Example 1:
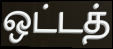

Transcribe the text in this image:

ஒட்டத்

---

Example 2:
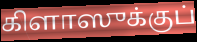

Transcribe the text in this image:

கிளாஸுக்குப்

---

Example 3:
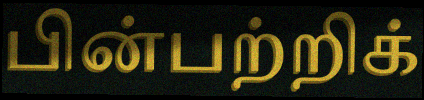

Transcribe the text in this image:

பின்பற்றிக்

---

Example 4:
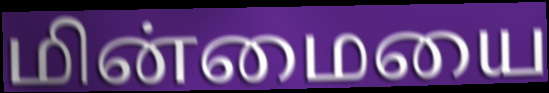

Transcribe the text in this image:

மின்மையை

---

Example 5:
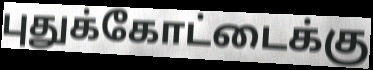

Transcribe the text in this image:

புதுக்கோட்டைக்கு